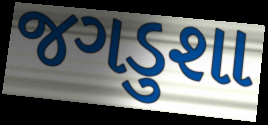
જગડુશા